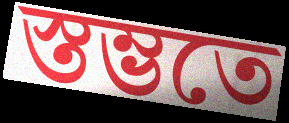
স্তম্ভতে